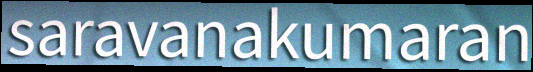
saravanakumaran